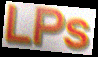
LPs